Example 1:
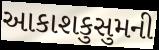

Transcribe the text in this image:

આકાશકુસુમની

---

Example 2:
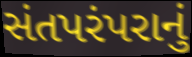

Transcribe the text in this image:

સંતપરંપરાનું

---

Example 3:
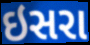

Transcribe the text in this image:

ઇસરા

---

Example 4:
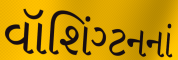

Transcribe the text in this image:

વૉશિંગ્ટનનાં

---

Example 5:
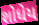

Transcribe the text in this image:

શોધેય